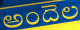
అందెల